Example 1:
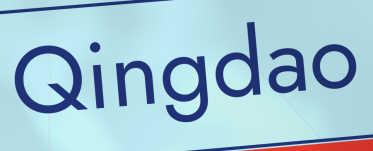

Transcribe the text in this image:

Qingdao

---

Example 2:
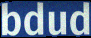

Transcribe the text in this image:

bdud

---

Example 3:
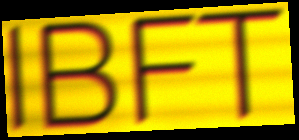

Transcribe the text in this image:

IBFT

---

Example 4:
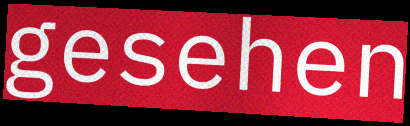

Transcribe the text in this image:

gesehen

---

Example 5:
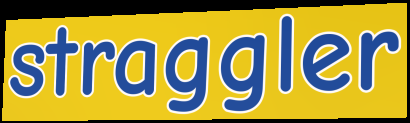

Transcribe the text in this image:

straggler